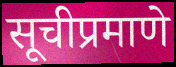
सूचीप्रमाणे